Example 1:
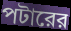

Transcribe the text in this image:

পটারের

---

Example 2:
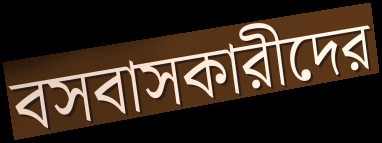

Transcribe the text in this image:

বসবাসকারীদের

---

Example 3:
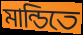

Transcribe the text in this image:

মান্ডিতে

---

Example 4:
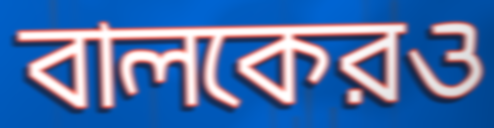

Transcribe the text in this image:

বালকেরও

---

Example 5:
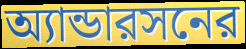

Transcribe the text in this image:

অ্যান্ডারসনের